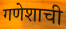
गणेशाची